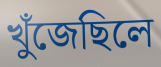
খুঁজেছিলে